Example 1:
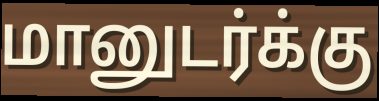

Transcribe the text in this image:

மானுடர்க்கு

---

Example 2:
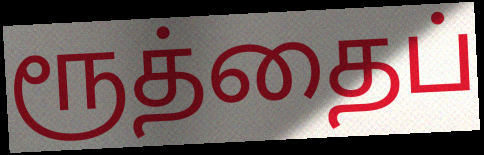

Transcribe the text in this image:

ரூத்தைப்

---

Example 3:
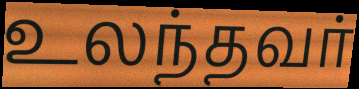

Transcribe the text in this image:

உலந்தவர்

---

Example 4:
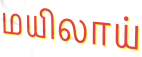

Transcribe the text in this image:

மயிலாய்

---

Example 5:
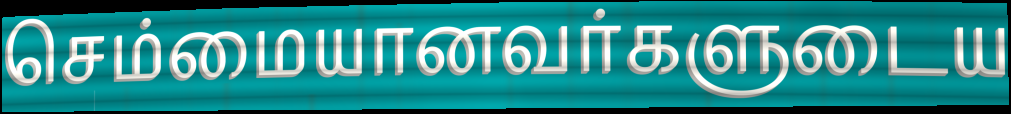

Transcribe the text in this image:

செம்மையானவர்களுடைய